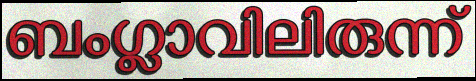
ബംഗ്ലാവിലിരുന്ന്